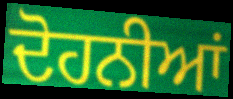
ਦੋਹਨੀਆਂ